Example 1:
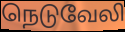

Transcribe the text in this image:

நெடுவேலி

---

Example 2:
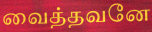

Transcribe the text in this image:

வைத்தவனே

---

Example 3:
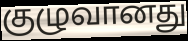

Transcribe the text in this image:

குழுவானது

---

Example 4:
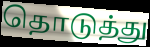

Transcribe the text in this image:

தொடுத்து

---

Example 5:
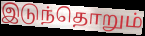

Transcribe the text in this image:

இடுந்தொறும்